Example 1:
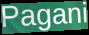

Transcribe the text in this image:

Pagani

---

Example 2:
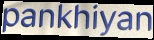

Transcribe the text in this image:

pankhiyan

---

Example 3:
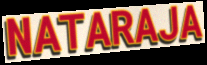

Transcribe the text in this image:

NATARAJA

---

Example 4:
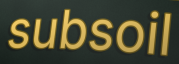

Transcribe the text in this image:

subsoil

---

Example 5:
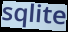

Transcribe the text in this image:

sqlite